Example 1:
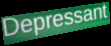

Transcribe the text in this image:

Depressant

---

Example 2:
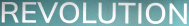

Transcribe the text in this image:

REVOLUTION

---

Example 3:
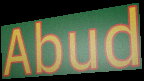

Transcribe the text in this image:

Abud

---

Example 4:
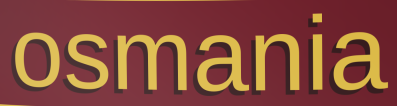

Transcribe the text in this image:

osmania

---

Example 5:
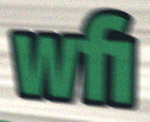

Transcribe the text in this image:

wfi